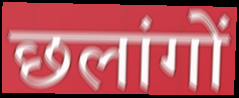
छलांगों